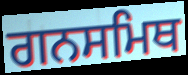
ਗਨਸਮਿਥ